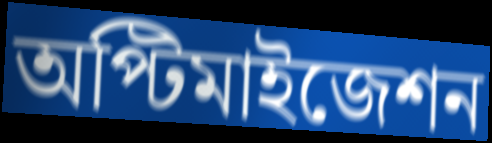
অপ্টিমাইজেশন